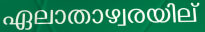
ഏലാതാഴ്വരയില്